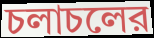
চলাচলের